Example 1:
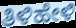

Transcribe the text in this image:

ತಿಳಿಹೇಳಿ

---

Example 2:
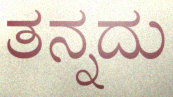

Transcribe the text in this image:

ತನ್ನದು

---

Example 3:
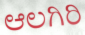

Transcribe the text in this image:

ಆಲಗಿರಿ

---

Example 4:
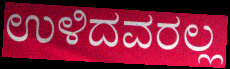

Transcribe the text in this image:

ಉಳಿದವರಲ್ಲ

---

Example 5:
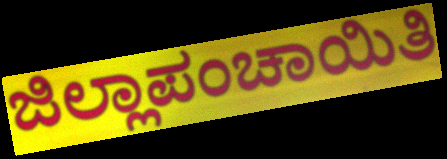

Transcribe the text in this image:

ಜಿಲ್ಲಾಪಂಚಾಯಿತಿ